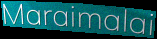
Maraimalai